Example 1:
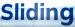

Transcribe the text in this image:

Sliding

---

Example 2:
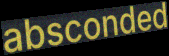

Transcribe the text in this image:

absconded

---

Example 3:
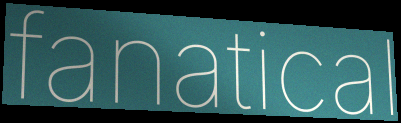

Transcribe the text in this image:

fanatical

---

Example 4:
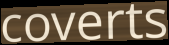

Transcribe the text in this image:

coverts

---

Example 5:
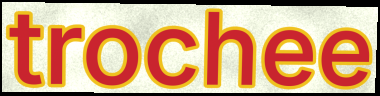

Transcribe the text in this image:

trochee